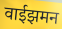
वाईझमन